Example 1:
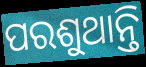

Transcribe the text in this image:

ପରଶୁଥାନ୍ତି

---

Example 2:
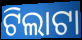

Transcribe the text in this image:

ଟିଲାଟା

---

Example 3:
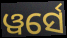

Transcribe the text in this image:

ୱର୍ସେ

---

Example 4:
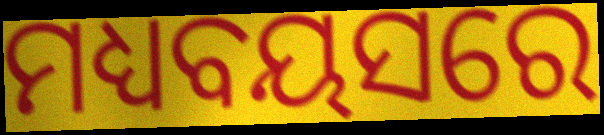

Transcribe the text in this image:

ମଧ୍ୟବୟସରେ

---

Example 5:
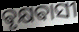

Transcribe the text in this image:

ଵୃକ୍ଷଵାସୀ